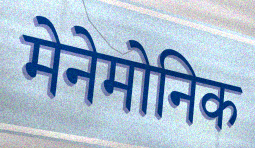
मेनेमोनिक